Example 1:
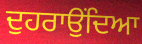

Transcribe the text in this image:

ਦੁਹਰਾਉਂਦਿਆ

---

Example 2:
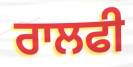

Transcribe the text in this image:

ਰਾਲਫੀ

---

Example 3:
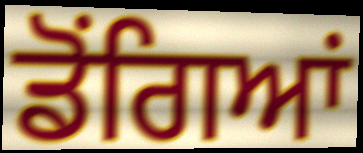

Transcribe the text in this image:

ਡੋਂਗਿਆਂ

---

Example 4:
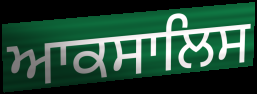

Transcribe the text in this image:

ਆਕਸਾਲਿਸ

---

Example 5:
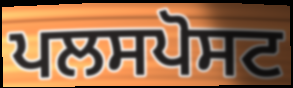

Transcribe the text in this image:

ਪਲਸਪੋਸਟ